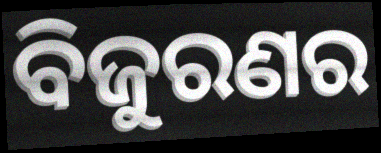
ବିଜୁରଣର